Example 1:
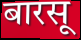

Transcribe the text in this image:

बारसू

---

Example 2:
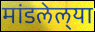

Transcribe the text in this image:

मांडलेल्या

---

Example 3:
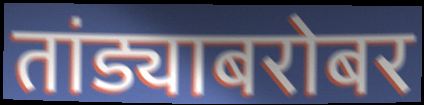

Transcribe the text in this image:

तांड्याबरोबर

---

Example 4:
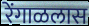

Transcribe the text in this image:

रेंगाळलास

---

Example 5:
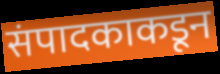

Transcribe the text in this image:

संपादकाकडून